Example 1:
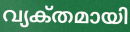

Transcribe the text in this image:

വ്യക്‌തമായി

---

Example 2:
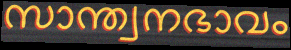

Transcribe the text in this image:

സാന്ത്വനഭാവം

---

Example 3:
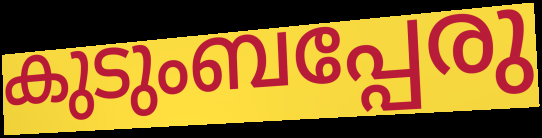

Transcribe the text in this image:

കുടുംബപ്പേരു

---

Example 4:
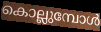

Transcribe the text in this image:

കൊല്ലുമ്പോൾ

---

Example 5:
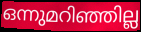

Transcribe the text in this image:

ഒന്നുമറിഞ്ഞില്ല